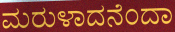
ಮರುಳಾದನೆಂದಾ